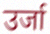
उर्जा